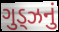
ગુડ્ઝનું